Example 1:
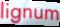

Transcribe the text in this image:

lignum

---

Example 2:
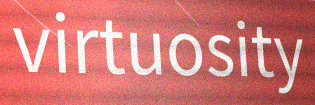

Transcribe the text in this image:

virtuosity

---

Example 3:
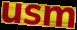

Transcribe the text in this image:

usm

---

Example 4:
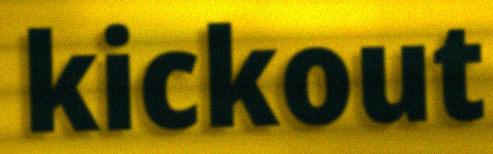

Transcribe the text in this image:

kickout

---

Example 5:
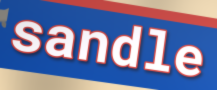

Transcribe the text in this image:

sandle